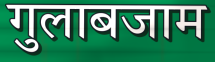
गुलाबजाम